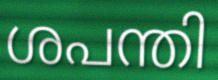
ശപന്തി